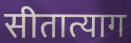
सीतात्याग